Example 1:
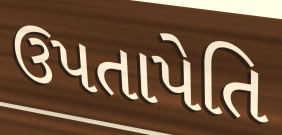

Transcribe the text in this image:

ઉપતાપેતિ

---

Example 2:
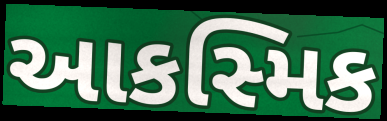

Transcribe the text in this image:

આકસ્મિક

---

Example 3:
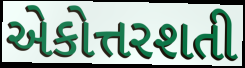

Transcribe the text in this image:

એકોત્તરશતી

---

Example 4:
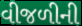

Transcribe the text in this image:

વીજળીની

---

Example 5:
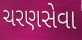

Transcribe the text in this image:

ચરણસેવા